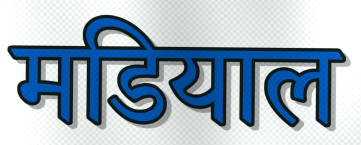
मडियाल